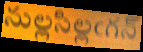
నుల్లసిల్లఁగన్